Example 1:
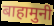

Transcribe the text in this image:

बाहामुनी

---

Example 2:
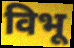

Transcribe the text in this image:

विभू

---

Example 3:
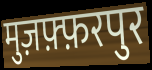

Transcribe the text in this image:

मुज़फ़्फ़रपुर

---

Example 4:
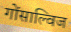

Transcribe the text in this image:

गोंसाल्विज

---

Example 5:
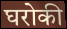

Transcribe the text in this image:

घरोकी